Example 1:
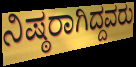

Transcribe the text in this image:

ನಿಷ್ಠರಾಗಿದ್ದವರು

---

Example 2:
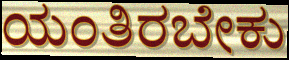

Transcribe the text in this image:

ಯಂತಿರಬೇಕು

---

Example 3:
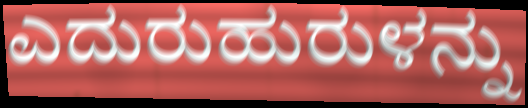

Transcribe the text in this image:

ಎದುರುಹುರುಳನ್ನು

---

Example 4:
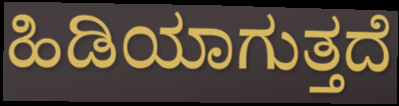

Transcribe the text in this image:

ಹಿಡಿಯಾಗುತ್ತದೆ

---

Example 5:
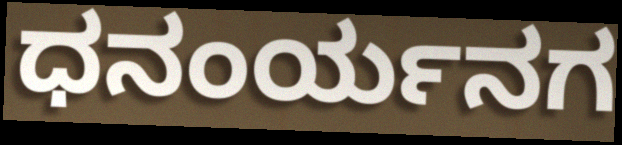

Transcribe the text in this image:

ಧನಂರ್ಯನಗ